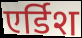
एर्डिश